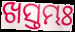
ଖସ୍ତମ୍ଭଃ